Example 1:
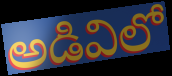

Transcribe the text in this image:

అడివిలో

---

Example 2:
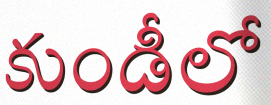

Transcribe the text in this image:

కుండీలో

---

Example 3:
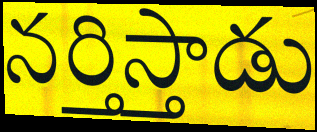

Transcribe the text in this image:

నర్తిస్తాడు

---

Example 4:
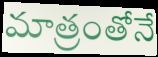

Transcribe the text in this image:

మాత్రంతోనే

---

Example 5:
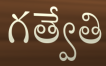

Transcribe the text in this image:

గత్వేతి